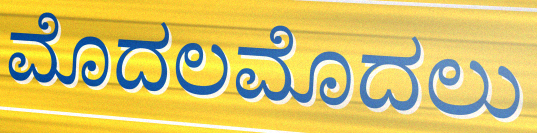
ಮೊದಲಮೊದಲು